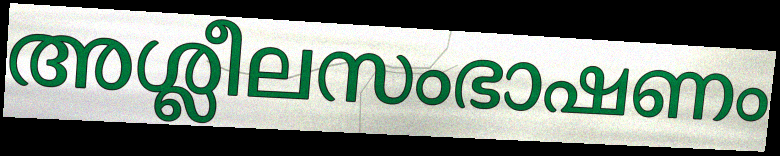
അശ്ലീലസംഭാഷണം